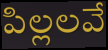
పిల్లలవే